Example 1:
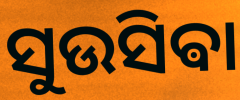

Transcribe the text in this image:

ସୁଉସିଵା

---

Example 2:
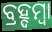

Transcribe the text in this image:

ବ୍ରହ୍ଦମ୍ବା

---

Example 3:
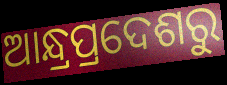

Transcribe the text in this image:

ଆନ୍ଧ୍ରପ୍ରଦେଶରୁ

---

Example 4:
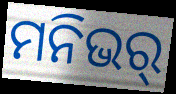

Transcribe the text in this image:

ମନିଭର୍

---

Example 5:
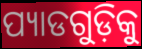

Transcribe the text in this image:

ପ୍ୟାଡଗୁଡ଼ିକୁ